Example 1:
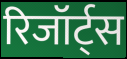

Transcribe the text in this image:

रिजॉर्ट्स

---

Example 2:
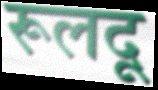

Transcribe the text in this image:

रूलदू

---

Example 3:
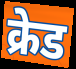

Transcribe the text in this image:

क्रेड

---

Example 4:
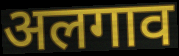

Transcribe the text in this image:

अलगाव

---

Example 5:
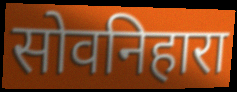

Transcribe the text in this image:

सोवनिहारा